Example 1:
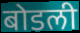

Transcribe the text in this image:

बोडली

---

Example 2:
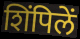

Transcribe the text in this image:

शिंपिलें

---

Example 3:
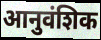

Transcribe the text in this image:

आनुवंशिक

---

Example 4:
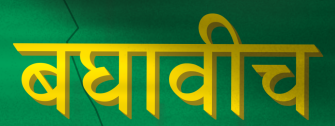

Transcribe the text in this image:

बघावीच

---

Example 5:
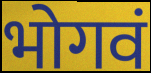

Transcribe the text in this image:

भोगवं